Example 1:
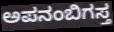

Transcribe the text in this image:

ಅಪನಂಬಿಗಸ್ತ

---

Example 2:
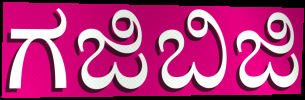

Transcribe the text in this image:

ಗಜಿಬಿಜಿ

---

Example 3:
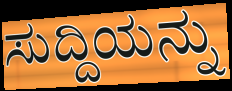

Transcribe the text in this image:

ಸುದ್ದಿಯನ್ನು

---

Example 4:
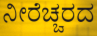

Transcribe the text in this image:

ನೀರೆಚ್ಚರದ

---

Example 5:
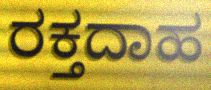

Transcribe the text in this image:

ರಕ್ತದಾಹ